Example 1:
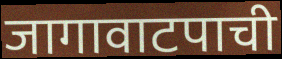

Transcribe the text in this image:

जागावाटपाची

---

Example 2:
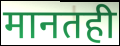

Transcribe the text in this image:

मानतही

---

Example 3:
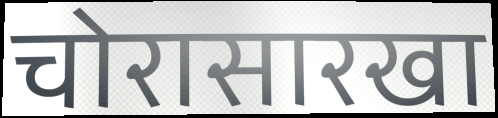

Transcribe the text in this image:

चोरासारखा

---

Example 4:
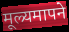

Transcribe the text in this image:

मूल्यमापने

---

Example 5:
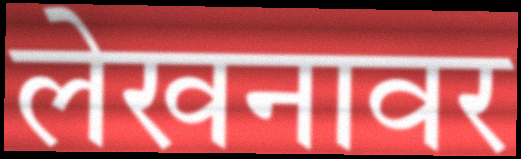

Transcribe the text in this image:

लेखनावर